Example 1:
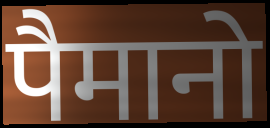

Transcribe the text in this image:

पैमानो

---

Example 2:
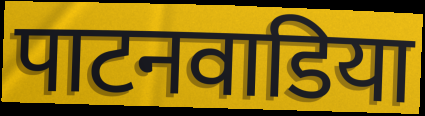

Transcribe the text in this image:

पाटनवाडिया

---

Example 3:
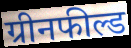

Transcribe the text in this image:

ग्रीनफील्‍ड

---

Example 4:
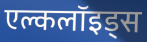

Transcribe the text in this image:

एल्कलॉइड्स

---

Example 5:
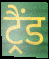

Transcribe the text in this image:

ट्रैंड